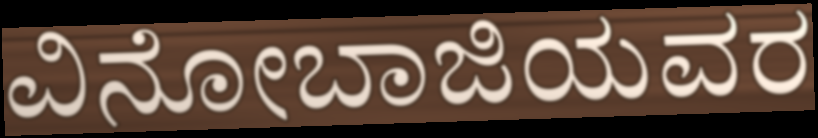
ವಿನೋಬಾಜಿಯವರ